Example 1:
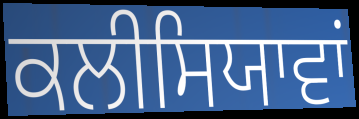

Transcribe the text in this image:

ਕਲੀਸਿਯਾਵਾਂ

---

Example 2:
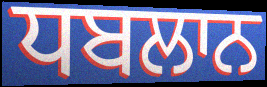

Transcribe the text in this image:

ਧਬਲਾਨ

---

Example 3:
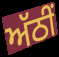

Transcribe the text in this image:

ਅੱਠੀਂ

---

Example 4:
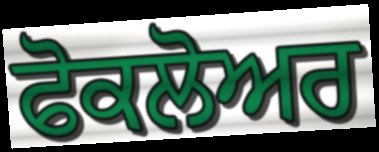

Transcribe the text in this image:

ਫੋਕਲੋਅਰ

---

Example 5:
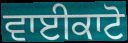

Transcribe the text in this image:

ਵਾਈਕਾਟੋ